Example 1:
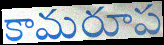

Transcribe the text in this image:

కామరూప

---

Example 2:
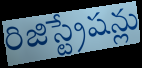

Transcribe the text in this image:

రిజిస్ట్రేషన్లు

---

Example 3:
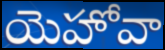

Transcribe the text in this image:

యెహోవా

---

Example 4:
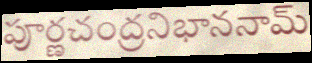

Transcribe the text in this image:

పూర్ణచంద్రనిభాననామ్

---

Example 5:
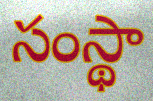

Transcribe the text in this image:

సంస్థా